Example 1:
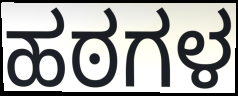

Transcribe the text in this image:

ಹಠಗಳ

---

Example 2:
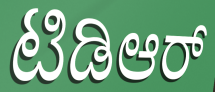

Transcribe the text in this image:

ಟಿಡಿಆರ್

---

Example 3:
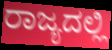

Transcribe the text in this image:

ರಾಜ್ಯದಲ್ಲಿ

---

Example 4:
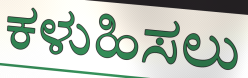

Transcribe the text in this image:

ಕಳುಹಿಸಲು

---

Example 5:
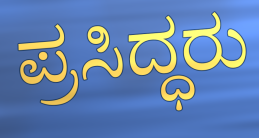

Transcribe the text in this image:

ಪ್ರಸಿದ್ಧರು